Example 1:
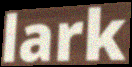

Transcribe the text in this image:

lark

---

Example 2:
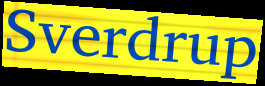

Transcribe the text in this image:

Sverdrup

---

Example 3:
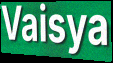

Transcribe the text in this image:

Vaisya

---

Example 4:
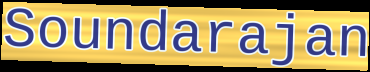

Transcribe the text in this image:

Soundarajan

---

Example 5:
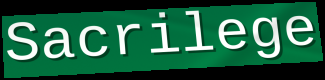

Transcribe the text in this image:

Sacrilege